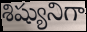
శిష్యునిగా